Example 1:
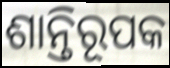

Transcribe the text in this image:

ଶାନ୍ତିରୂପକ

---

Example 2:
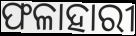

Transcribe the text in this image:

ଫଳାହାରୀ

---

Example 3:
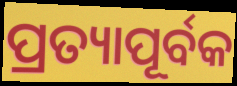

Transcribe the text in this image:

ପ୍ରତ୍ୟାପୂର୍ବକ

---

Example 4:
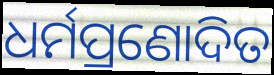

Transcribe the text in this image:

ଧର୍ମପ୍ରଣୋଦିତ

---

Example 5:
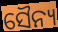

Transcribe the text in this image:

ସୈନ୍ୟ